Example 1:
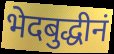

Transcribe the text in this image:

भेदबुद्धीनं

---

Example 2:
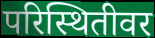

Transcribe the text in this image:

परिस्थितीवर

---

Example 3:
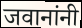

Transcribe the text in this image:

जवानांनी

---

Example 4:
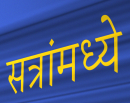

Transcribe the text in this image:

सत्रांमध्ये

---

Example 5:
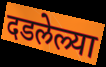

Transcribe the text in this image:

दडलेल्या